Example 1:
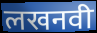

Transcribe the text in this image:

लखनवी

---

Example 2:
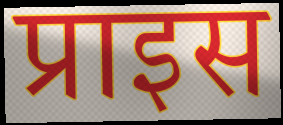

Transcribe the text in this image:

प्राइस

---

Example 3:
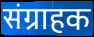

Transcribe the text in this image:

संग्राहक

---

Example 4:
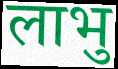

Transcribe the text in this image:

लाभु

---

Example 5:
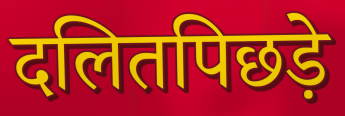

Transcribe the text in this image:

दलितपिछड़े